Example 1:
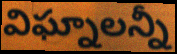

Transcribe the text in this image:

విఘ్నాలన్నీ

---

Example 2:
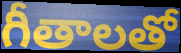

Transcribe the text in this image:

గీతాలతో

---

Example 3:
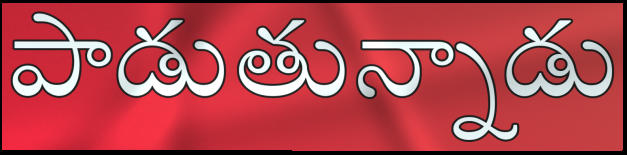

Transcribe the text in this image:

పాడుతున్నాడు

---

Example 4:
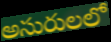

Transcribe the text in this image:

అసురులలో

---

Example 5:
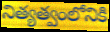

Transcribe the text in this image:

నిత్యత్వంలోనికి